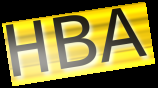
HBA